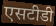
एसटीडी